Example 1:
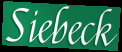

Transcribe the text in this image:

Siebeck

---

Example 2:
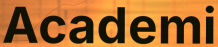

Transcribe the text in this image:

Academi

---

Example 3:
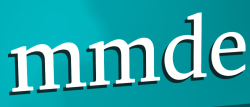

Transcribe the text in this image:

mmde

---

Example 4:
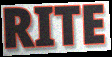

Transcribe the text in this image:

RITE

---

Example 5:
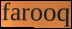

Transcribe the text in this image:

farooq